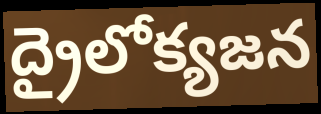
ద్రైలోక్యజన